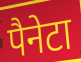
पैनेटा